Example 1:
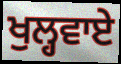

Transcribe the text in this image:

ਖੁਲ੍ਹਵਾਏ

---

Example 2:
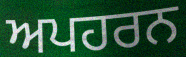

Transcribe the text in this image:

ਅਪਹਰਨ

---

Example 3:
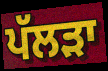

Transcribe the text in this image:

ਪੱਲੜਾ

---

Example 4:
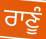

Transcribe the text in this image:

ਰਾਣੂੰ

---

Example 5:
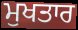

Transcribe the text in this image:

ਮੁਖਤਾਰ